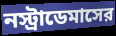
নস্ট্রাডেমাসের